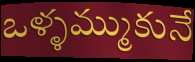
ఒళ్ళమ్ముకునే